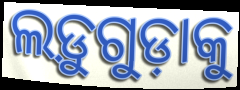
ଲଡ଼ୁଗୁଡ଼ାକୁ